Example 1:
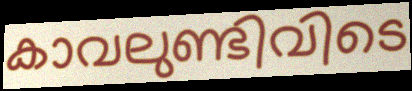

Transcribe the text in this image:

കാവലുണ്ടിവിടെ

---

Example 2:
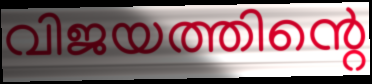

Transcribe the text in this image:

വിജയത്തിന്റെ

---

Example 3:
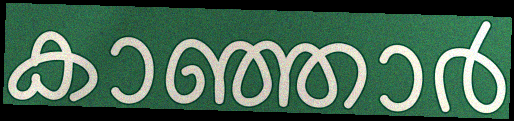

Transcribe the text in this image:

കാഞ്ഞാർ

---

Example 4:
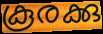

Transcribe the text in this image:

കൂരക്കു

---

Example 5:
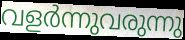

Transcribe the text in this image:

വളർന്നുവരുന്നു